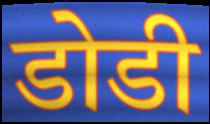
डोडी